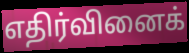
எதிர்வினைக்